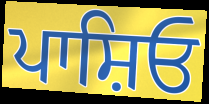
ਪਾਸ਼ਿਓ